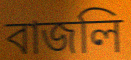
বাজলি